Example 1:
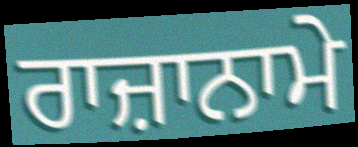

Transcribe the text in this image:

ਰਾਜ਼ਾਨਾਮੇ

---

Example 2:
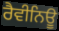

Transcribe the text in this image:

ਰੈਵੀਨਿਊ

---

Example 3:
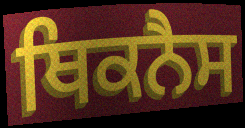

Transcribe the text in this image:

ਥਿਕਨੈਸ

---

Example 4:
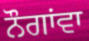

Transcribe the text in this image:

ਨੌਗਾਂਵਾ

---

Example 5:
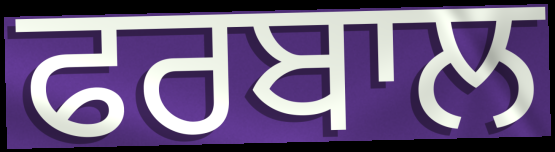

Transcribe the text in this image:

ਫਰਬਾਲ